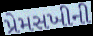
પ્રેમસખીની